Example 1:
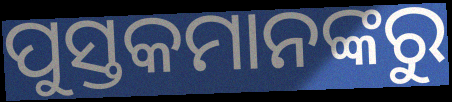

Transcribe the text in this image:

ପୁସ୍ତକମାନଙ୍କରୁ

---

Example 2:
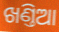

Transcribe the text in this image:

ଖଣ୍ତିଆ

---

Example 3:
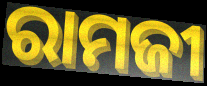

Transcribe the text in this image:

ରାମଜୀ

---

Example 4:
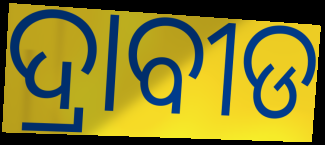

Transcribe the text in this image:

ଦ୍ରାବୀଡ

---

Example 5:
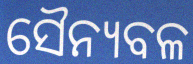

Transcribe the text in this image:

ସୈନ୍ୟବଳ